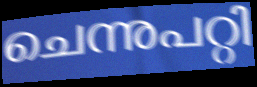
ചെന്നുപറ്റി